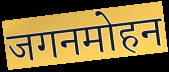
जगनमोहन